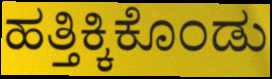
ಹತ್ತಿಕ್ಕಿಕೊಂಡು